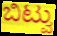
ಬಿಟ್ವು